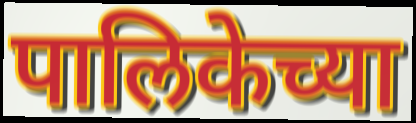
पालिकेच्या